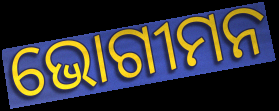
ଭୋଗୀମନ